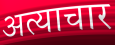
अत्याचार